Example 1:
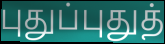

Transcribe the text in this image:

புதுப்புதுத்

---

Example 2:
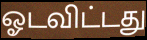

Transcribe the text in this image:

ஓடவிட்டது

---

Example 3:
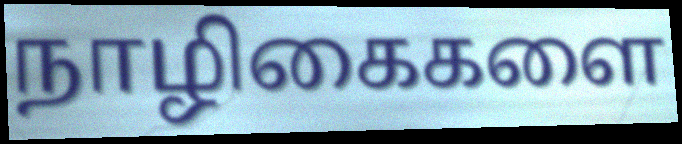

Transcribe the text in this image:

நாழிகைகளை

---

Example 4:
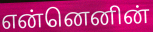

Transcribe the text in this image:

என்னெனின்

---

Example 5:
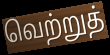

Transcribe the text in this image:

வெற்றுத்